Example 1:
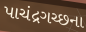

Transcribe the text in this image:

પાચંદ્રગચ્છના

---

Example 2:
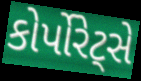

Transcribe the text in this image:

કોર્પોરેટ્સે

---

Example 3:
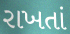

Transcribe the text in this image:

રાખતાં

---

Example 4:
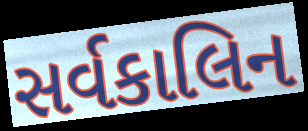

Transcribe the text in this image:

સર્વકાલિન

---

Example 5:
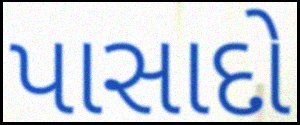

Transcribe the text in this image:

પાસાદો